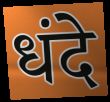
धंदे